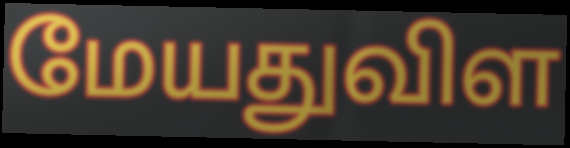
மேயதுவிள